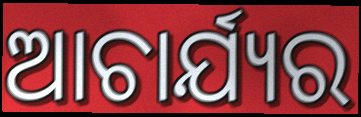
ଆଚାର୍ଯ୍ୟର